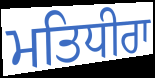
ਮਤਿਧੀਰਾ